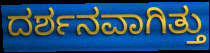
ದರ್ಶನವಾಗಿತ್ತು